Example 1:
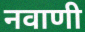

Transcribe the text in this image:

नवाणी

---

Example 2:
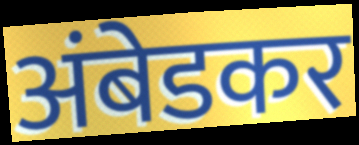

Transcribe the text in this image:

अंबेडकर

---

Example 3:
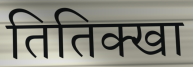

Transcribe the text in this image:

तितिक्खा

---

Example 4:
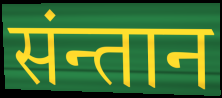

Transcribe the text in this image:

संन्तान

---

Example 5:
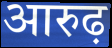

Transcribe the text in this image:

आरुढ़